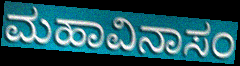
ಮಹಾವಿನಾಸಂ